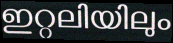
ഇറ്റലിയിലും